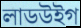
লাডউইগ